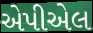
એપીએલ